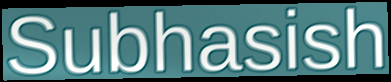
Subhasish